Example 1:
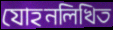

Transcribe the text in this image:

যোহনলিখিত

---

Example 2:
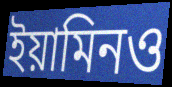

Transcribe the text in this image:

ইয়ামিনও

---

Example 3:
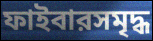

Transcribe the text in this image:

ফাইবারসমৃদ্ধ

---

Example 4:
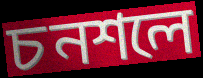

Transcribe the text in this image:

চনশলে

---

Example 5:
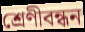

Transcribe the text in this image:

শ্রেণীবন্ধন